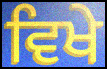
ਵਿਖੇ